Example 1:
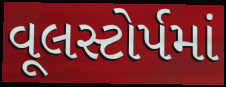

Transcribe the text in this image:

વૂલસ્ટોર્પમાં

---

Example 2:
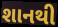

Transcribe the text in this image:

શાનથી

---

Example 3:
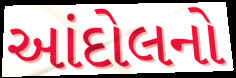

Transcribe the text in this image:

આંદોલનો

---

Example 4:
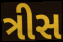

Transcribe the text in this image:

ત્રીસ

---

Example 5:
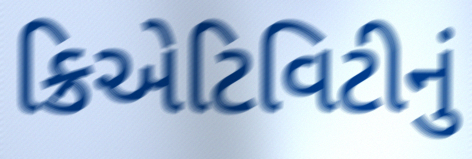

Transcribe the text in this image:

ક્રિએટિવિટીનું